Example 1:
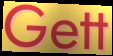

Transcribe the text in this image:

Gett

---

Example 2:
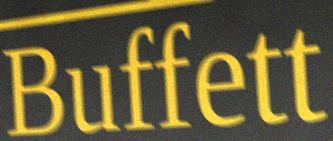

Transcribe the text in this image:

Buffett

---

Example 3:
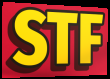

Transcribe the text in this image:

STF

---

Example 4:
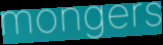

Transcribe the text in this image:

mongers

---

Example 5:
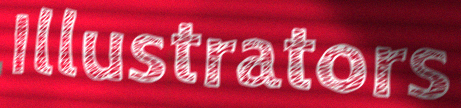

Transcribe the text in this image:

Illustrators